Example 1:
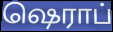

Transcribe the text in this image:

ஷெராப்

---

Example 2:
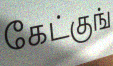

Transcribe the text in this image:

கேட்குங்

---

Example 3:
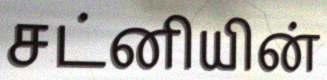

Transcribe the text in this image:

சட்னியின்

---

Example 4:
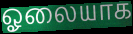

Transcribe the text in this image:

ஓலையாக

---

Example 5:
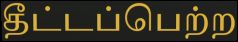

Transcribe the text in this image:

தீட்டப்பெற்ற